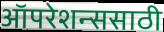
ऑपरेशन्ससाठी